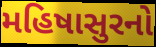
મહિષાસુરનો